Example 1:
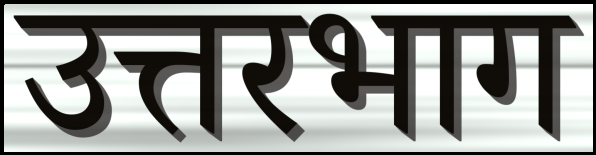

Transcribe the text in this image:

उत्तरभाग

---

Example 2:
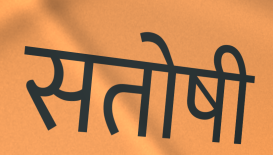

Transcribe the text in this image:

सतोषी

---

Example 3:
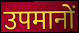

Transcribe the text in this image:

उपमानों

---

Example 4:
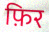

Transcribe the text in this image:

फ़िर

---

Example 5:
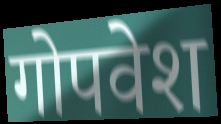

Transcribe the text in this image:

गोपवेश